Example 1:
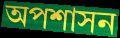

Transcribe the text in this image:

অপশাসন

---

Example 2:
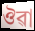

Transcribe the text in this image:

ঔৱা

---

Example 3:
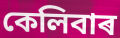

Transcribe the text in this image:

কেলিবাৰ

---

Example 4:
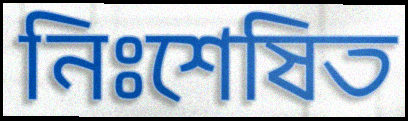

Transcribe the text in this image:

নিঃশেষিত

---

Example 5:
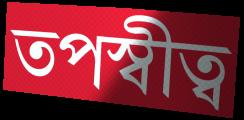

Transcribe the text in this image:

তপস্বীত্ব